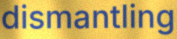
dismantling